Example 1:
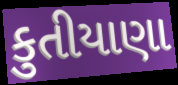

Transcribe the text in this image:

કુતીયાણા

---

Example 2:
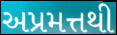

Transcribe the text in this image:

અપ્રમત્તથી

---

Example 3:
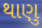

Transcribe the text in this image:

થાણુ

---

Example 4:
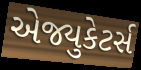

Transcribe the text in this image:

એજ્યુકેટર્સ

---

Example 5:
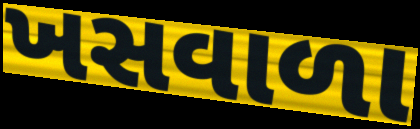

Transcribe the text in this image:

ખસવાળા